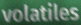
volatiles